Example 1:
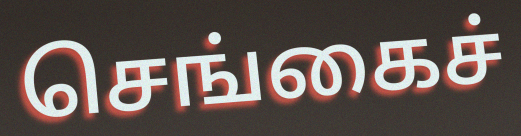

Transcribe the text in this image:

செங்கைச்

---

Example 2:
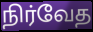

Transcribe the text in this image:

நிர்வேத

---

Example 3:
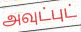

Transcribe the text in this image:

அவுட்புட்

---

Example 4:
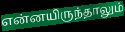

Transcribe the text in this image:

என்னயிருந்தாலும்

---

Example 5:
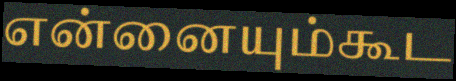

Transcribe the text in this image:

என்னையும்கூட